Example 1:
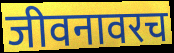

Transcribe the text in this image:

जीवनावरच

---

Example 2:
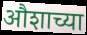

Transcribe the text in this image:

औशाच्या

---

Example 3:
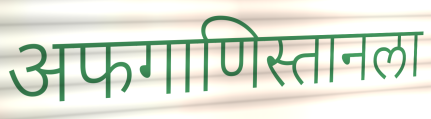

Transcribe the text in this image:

अफगाणिस्तानला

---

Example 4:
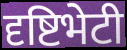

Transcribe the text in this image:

दृष्टिभेटी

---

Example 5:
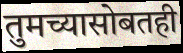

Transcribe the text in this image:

तुमच्यासोबतही